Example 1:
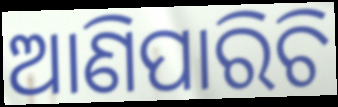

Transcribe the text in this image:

ଆଣିପାରିଚି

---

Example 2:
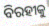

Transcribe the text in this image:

ବିରହୀକୁ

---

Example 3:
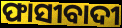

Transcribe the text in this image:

ଫାସୀବାଦୀ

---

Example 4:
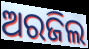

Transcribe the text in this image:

ଅରଜିଲ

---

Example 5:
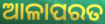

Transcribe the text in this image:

ଆଳାପରତ